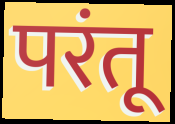
परंतू